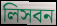
লিসবন